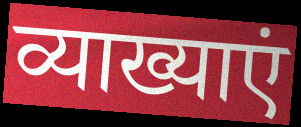
व्याख्याएं